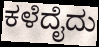
ಕಳೆದೈದು